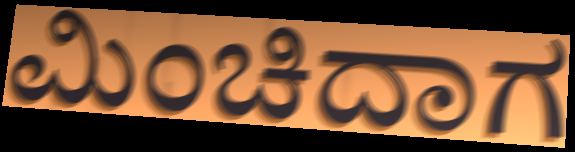
ಮಿಂಚಿದಾಗ